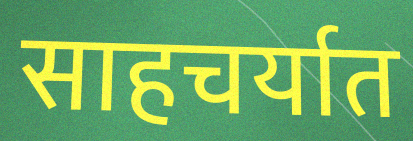
साहचर्यात